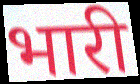
भारी